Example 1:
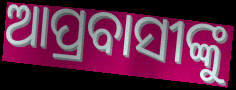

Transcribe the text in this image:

ଆପ୍ରବାସୀଙ୍କୁ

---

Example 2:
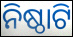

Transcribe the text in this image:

ନିଷ୍ଠାଟି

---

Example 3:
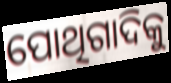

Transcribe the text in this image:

ପୋଥିଗାଦିକୁ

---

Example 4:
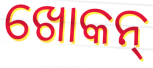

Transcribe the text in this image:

ଖୋକନ୍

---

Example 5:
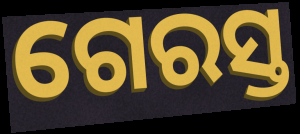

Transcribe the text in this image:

ଗେରସ୍ତ